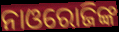
ନାଓରୋଜିଙ୍କ